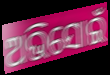
ଅଭିସୋଇଁ